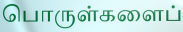
பொருள்களைப்